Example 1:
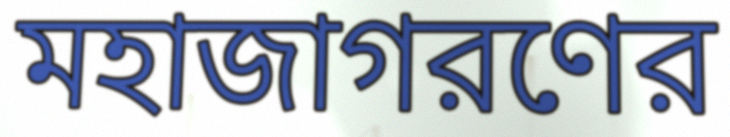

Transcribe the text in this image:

মহাজাগরণের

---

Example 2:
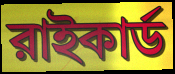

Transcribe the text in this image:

রাইকার্ড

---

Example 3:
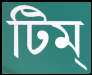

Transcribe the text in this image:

টিম্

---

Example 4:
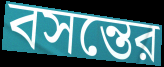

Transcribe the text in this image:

বসন্তের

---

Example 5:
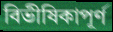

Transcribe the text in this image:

বিভীষিকাপূর্ণ